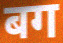
बग